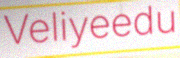
Veliyeedu